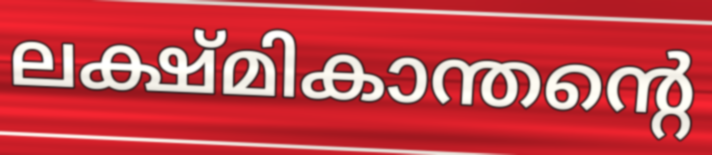
ലക്ഷ്മികാന്തന്റെ